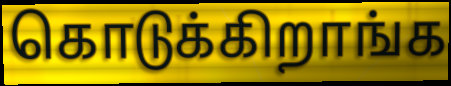
கொடுக்கிறாங்க